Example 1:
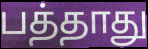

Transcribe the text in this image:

பத்தாது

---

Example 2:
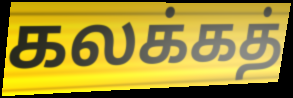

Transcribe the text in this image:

கலக்கத்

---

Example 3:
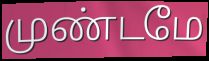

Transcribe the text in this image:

முண்டமே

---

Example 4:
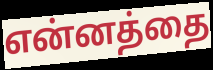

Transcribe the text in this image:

என்னத்தை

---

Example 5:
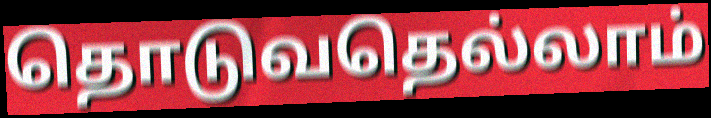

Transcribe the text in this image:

தொடுவதெல்லாம்